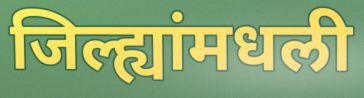
जिल्ह्यांमधली